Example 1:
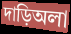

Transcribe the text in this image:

দাড়িঅলা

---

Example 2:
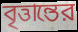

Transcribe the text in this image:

বৃত্তান্তের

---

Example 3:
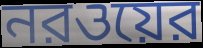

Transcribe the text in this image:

নরওয়ের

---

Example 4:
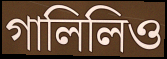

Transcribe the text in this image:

গালিলিও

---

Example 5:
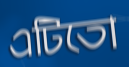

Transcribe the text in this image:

এটিতো